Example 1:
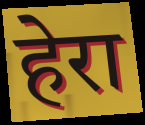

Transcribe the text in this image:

हेरा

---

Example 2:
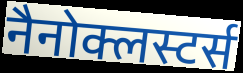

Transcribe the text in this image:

नैनोक्लस्टर्स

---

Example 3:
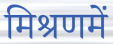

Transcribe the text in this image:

मिश्रणमें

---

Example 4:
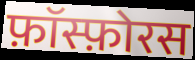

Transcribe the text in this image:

फ़ॉस्फ़ोरस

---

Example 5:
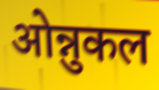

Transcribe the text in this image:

ओन्नुकल